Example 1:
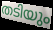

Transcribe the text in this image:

തടിയും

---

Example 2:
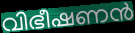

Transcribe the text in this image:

വിഭീഷണൻ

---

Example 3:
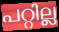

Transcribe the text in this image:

പറ്റില്ല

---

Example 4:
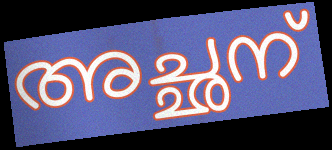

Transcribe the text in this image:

അച്ഛന്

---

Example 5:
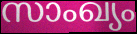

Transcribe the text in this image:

സാംഖ്യം